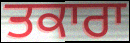
ਤਕਾਰਾ